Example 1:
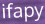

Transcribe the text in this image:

ifapy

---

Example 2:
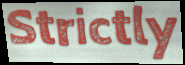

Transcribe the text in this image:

Strictly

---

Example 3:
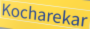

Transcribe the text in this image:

Kocharekar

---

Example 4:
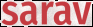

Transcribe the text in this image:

sarav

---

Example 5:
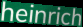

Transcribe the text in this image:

heinrich